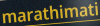
marathimati